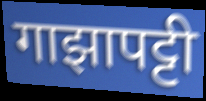
गाझापट्टी